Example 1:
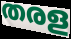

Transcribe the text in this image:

തരള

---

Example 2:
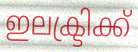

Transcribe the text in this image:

ഇലക്ട്രിക്ക്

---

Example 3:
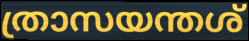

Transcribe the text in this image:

ത്രാസയന്തശ്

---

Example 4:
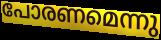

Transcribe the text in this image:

പോരണമെന്നു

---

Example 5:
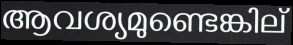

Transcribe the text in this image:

ആവശ്യമുണ്ടെങ്കില്